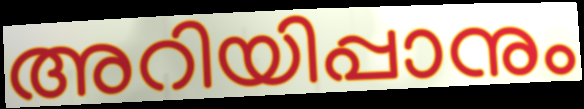
അറിയിപ്പാനും